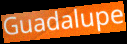
Guadalupe